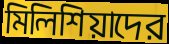
মিলিশিয়াদের